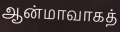
ஆன்மாவாகத்